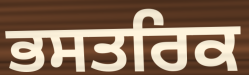
ਭਸਤਰਿਕ